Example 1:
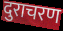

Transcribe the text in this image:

दुराचरण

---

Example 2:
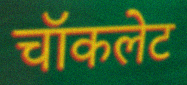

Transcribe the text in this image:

चॉकलेट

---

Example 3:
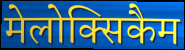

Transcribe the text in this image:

मेलोक्सिकैम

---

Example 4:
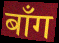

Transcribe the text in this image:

बाँग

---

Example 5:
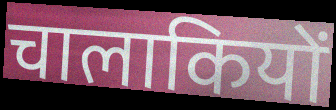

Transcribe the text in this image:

चालाकियों